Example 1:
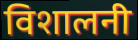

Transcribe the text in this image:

विशालनी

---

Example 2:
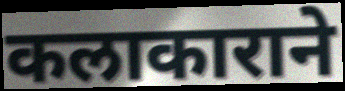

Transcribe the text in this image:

कलाकाराने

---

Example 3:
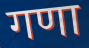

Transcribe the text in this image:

गणा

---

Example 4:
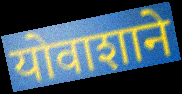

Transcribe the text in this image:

योवाशाने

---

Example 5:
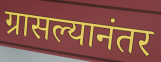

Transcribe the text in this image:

ग्रासल्यानंतर